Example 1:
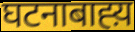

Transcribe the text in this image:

घटनाबाह्य़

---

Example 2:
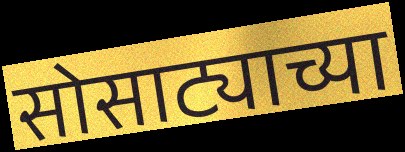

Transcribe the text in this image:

सोसाट्याच्या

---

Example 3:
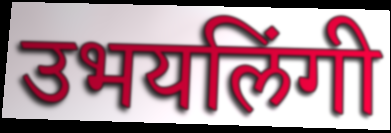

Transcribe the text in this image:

उभयलिंगी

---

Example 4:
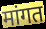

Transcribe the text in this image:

मांगत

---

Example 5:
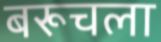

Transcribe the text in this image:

बरूचला